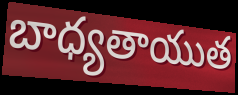
బాధ్యతాయుత